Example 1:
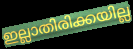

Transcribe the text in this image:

ഇല്ലാതിരിക്കയില്ല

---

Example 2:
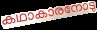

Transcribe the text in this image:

കഥാകാരനോടു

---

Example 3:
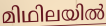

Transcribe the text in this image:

മിഥിലയിൽ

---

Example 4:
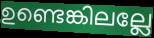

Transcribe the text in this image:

ഉണ്ടെങ്കിലല്ലേ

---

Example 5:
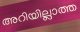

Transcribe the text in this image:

അറിയില്ലാത്ത